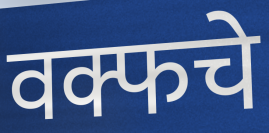
वक्फचे